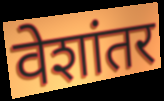
वेशांतर